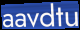
aavdtu